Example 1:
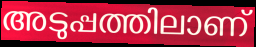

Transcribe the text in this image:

അടുപ്പത്തിലാണ്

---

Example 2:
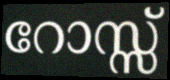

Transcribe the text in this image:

റോസ്സ്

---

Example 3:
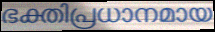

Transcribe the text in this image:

ഭക്തിപ്രധാനമായ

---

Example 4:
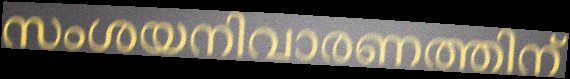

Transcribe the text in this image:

സംശയനിവാരണത്തിന്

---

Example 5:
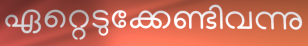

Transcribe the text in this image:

ഏറ്റെടുക്കേണ്ടിവന്നു